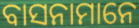
ବାସନାମାନେ